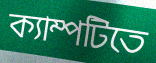
ক্যাম্পটিতে